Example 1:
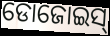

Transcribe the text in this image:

ଡୋଜୋଇସ୍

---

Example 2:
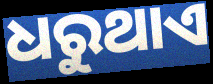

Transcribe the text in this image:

ଧରୁଥାଏ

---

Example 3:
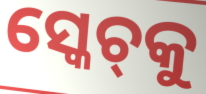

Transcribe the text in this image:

ସ୍କେଚ୍‌କୁ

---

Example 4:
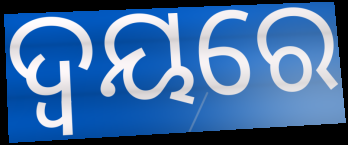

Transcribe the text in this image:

ଦ୍ୱୟରେ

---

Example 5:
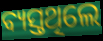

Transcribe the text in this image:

ବ୍ୟସ୍ତଥିଲେ